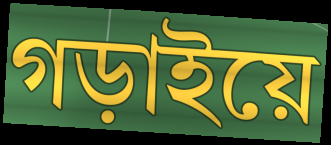
গড়াইয়ে